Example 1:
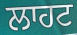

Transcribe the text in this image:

ਲਾਹਟ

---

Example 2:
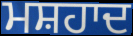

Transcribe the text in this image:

ਮਸ਼ਹਾਦ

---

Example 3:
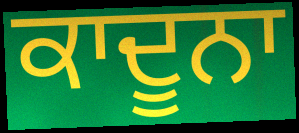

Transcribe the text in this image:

ਕਾਦੂਨਾ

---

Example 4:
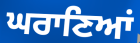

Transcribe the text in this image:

ਘਰਾਣਿਆਂ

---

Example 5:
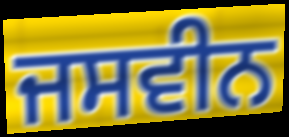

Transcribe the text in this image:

ਜਸਵੀਨ